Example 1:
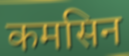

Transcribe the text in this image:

कमसिन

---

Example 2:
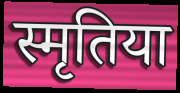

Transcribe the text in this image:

स्मृतिया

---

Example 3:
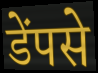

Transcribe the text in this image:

डेंपसे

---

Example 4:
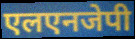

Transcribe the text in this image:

एलएनजेपी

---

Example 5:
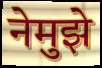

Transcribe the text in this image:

नेमुझे